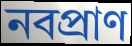
নবপ্রাণ